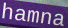
hamna